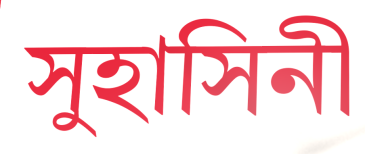
সুহাসিনী